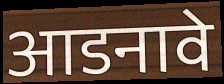
आडनावे